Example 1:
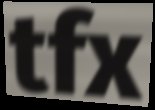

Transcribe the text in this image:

tfx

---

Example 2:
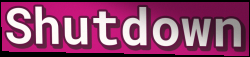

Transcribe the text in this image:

Shutdown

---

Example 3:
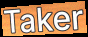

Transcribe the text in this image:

Taker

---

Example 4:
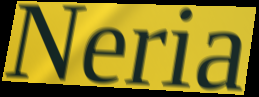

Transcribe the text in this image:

Neria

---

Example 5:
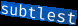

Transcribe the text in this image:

subtlest